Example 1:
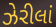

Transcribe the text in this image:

ઝેરીલાં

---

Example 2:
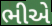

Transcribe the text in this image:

ભીએ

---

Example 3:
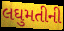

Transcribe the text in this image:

લઘુમતીની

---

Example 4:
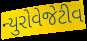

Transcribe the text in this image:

ન્યુરોવેજેટીવ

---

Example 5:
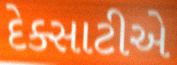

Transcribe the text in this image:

દેક્સાટીએ